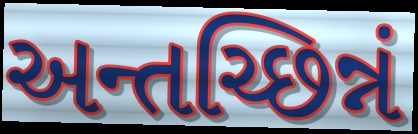
અન્તચ્છિન્નં